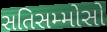
સતિસમ્મોસો